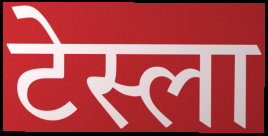
टेस्ला